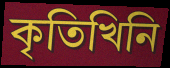
কৃতিখিনি